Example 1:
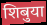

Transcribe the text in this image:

शिबुया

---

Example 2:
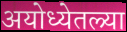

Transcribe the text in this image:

अयोध्येतल्या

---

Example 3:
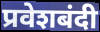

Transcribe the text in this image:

प्रवेशबंदी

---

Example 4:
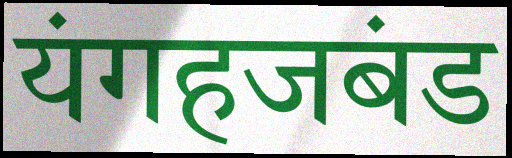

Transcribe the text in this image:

यंगहजबंड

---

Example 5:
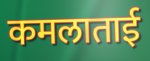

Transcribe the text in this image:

कमलाताई